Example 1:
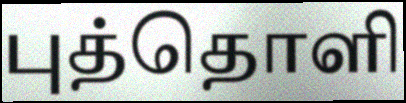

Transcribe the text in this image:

புத்தொளி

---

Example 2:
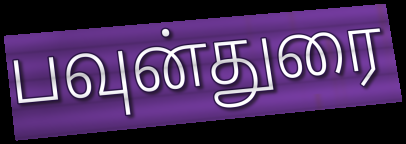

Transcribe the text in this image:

பவுன்துரை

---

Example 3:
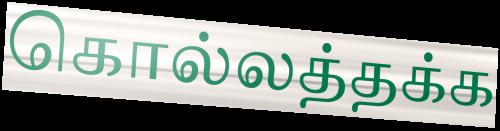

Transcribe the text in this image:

கொல்லத்தக்க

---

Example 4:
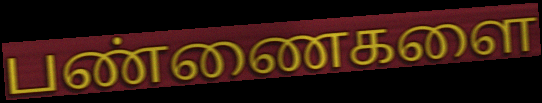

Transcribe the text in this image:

பண்ணைகளை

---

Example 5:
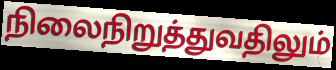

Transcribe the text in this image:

நிலைநிறுத்துவதிலும்